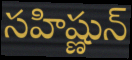
సహిష్ణున్